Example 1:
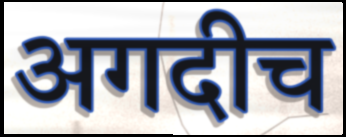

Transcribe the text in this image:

अगदीच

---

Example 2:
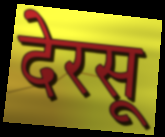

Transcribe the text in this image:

देरसू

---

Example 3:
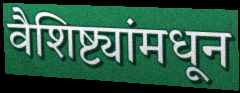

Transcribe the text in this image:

वैशिष्ट्यांमधून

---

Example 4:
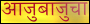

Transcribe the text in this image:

आजुबाजुचा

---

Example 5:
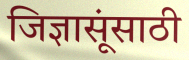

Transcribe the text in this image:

जिज्ञासूंसाठी